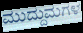
ಮುದ್ದುಮಗಳ